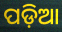
ପଡ଼ିଆ